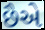
છૈએ